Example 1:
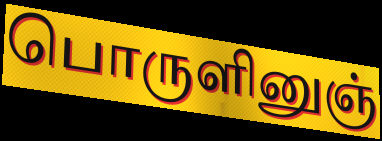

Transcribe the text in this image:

பொருளினுஞ்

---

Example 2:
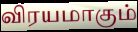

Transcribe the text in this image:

விரயமாகும்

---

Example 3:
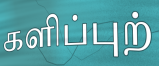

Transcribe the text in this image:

களிப்புற்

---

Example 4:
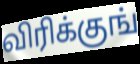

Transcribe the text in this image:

விரிக்குங்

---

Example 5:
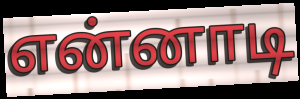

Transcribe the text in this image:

என்னாடி